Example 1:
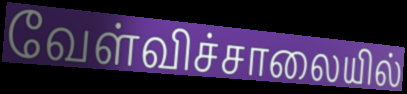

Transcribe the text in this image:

வேள்விச்சாலையில்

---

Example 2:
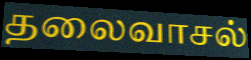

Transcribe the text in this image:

தலைவாசல்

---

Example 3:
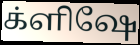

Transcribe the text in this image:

க்ளிஷே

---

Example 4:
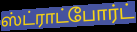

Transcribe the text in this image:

ஸ்ட்ராட்போர்ட்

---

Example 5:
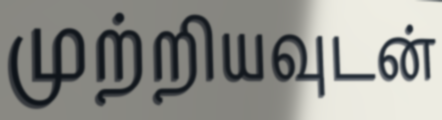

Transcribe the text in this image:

முற்றியவுடன்